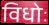
विधोः